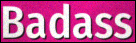
Badass